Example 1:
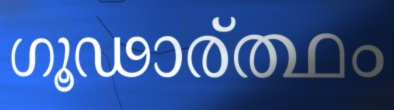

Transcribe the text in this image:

ഗൂഢാര്ത്ഥം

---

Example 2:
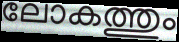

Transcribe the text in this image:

ലോകത്തും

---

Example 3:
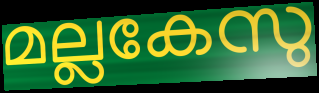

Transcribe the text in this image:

മല്ലകേസു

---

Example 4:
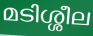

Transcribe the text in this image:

മടിശ്ശീല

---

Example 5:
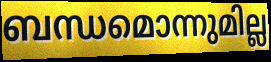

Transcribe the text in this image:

ബന്ധമൊന്നുമില്ല